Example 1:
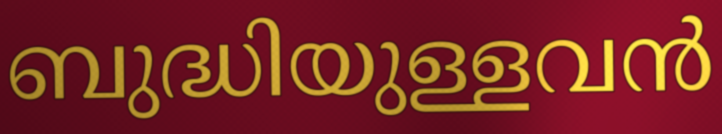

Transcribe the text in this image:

ബുദ്ധിയുള്ളവൻ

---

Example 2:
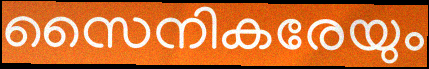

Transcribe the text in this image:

സൈനികരേയും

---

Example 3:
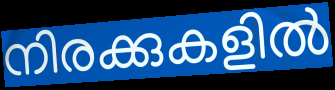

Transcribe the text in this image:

നിരക്കുകളിൽ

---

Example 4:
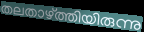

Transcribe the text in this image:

തലതാഴ്ത്തിയിരുന്നു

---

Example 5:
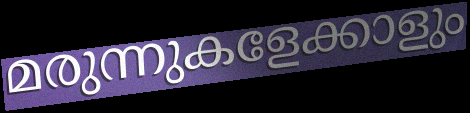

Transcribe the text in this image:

മരുന്നുകളേക്കാളും